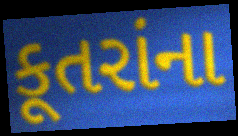
કૂતરાંના